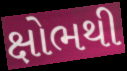
ક્ષોભથી